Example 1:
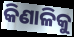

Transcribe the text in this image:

କିଣାଳିକୁ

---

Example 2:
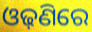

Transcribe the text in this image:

ଓଢ଼ଣିରେ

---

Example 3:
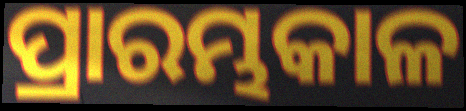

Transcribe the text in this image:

ପ୍ରାରମ୍ଭକାଳ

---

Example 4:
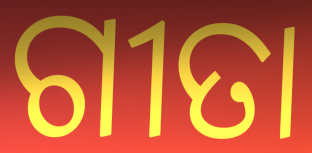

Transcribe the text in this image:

ଗୀତା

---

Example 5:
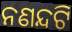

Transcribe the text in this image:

ନଣନ୍ଦଟି